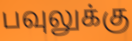
பவுலுக்கு